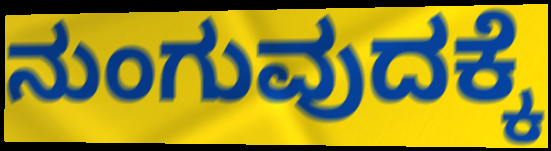
ನುಂಗುವುದಕ್ಕೆ